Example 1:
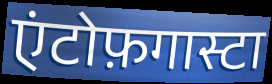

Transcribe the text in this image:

एंटोफ़गास्टा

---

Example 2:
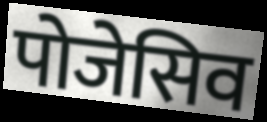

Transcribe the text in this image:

पोजेसिव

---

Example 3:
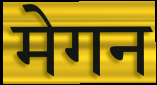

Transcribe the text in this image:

मेगन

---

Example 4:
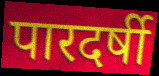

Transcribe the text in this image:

पारदर्षी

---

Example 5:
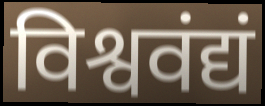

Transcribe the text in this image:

विश्ववंद्यं